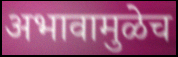
अभावामुळेच